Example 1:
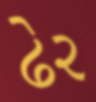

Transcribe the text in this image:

ઢેર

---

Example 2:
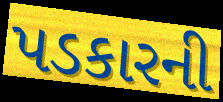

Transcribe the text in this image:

પડકારની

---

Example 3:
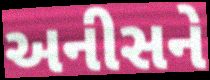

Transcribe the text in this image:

અનીસને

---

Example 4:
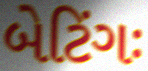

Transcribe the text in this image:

બેટિંગઃ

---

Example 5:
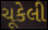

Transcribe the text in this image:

ચૂકેલી